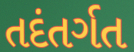
તદંતર્ગત